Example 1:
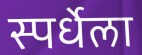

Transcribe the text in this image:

स्पर्धेला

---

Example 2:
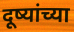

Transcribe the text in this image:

दूष्यांच्या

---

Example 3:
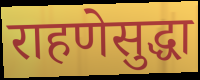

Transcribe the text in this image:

राहणेसुद्धा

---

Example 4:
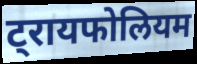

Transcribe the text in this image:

ट्रायफोलियम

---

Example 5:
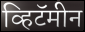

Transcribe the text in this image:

व्हिटॅमीन